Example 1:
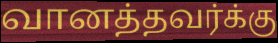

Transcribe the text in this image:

வானத்தவர்க்கு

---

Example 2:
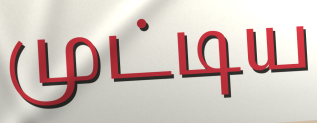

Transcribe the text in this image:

முட்டிய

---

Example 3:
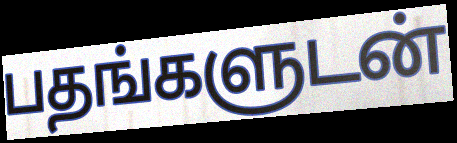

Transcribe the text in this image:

பதங்களுடன்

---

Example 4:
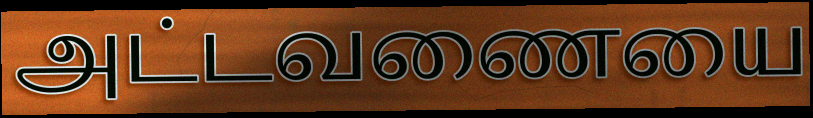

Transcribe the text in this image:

அட்டவணையை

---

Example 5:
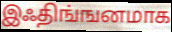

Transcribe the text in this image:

இஃதிங்ஙனமாக